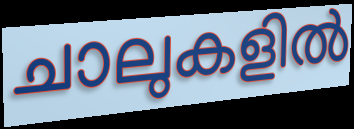
ചാലുകളിൽ